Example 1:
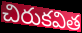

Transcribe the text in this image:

చిరుకవిత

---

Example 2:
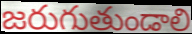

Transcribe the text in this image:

జరుగుతుండాలి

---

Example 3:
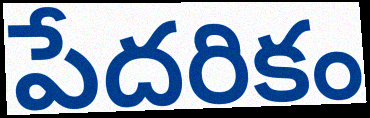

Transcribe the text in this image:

పేదరికం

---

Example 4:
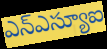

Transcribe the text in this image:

ఎన్ఎస్యూఐ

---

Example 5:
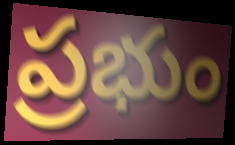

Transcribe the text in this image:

ప్రభుం